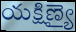
యక్షిణ్యై